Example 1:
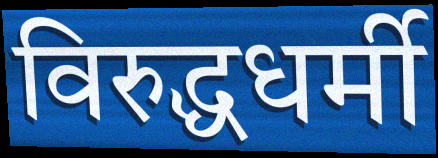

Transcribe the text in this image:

विरुद्धधर्मी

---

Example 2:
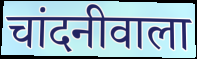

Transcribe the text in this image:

चांदनीवाला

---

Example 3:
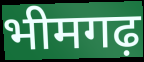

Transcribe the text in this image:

भीमगढ़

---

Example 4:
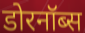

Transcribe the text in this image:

डोरनॉब्स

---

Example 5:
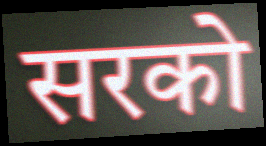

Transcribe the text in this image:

सरको